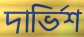
দার্ভিশ